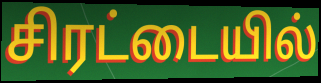
சிரட்டையில்